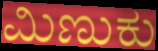
ಮಿಣುಕು